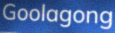
Goolagong